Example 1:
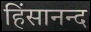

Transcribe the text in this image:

हिंसानन्द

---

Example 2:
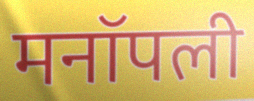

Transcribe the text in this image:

मनॉपली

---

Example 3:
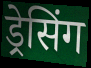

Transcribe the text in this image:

ड्रेसिंग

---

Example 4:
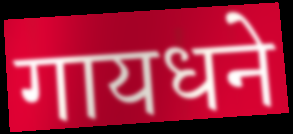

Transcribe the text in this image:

गायधने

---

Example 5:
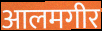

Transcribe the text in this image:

आलमगीर